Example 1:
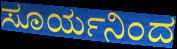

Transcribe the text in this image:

ಸೂರ್ಯನಿಂದ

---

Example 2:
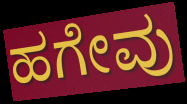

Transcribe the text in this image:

ಹಗೇವು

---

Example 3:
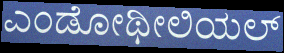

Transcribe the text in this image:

ಎಂಡೋಥೀಲಿಯಲ್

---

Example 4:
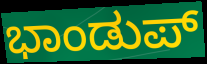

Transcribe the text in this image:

ಭಾಂಡುಪ್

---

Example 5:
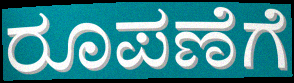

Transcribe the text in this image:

ರೂಪಣೆಗೆ